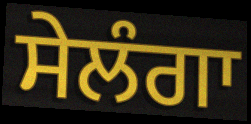
ਸੇਲੰਗਾ